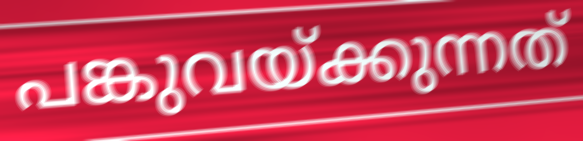
പങ്കുവയ്ക്കുന്നത്